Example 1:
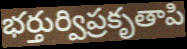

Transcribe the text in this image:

భర్తుర్విప్రకృతాపి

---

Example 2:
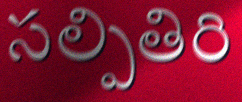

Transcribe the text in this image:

సల్పితిరి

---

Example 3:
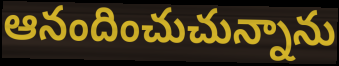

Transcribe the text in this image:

ఆనందించుచున్నాను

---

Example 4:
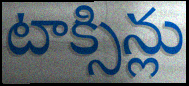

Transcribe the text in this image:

టాక్సిన్లు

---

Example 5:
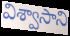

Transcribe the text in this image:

విశ్వాసాని